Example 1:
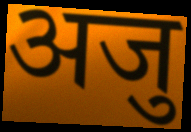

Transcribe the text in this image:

अजु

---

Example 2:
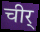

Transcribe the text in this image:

चीर्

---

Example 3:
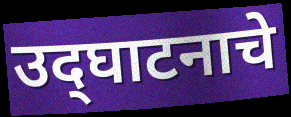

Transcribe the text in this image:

उद्‌घाटनाचे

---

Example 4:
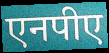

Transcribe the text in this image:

एनपीए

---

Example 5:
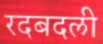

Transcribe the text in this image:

रदबदली